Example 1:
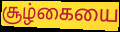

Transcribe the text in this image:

சூழ்கையை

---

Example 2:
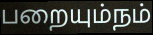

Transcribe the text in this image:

பறையும்நம்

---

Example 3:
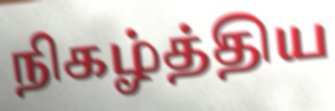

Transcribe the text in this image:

நிகழ்த்திய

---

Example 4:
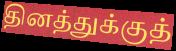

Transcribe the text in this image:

தினத்துக்குத்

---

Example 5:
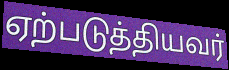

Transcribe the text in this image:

ஏற்படுத்தியவர்